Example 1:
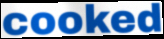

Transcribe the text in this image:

cooked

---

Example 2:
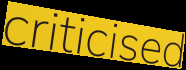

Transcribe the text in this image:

criticised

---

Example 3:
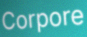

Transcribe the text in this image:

Corpore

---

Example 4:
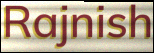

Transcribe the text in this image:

Rajnish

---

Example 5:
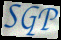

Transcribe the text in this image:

SGP